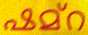
ഷമ്റ